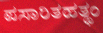
ಪಸಾರಿತಹತ್ಥಂ